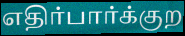
எதிர்பார்க்குற